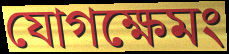
যোগক্ষেমং